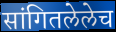
सांगितलेलेच